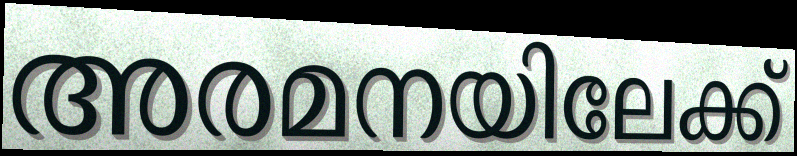
അരമനയിലേക്ക്